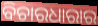
ବିଚାରଧାରାର